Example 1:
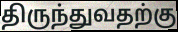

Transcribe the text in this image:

திருந்துவதற்கு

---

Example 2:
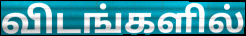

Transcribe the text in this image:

விடங்களில்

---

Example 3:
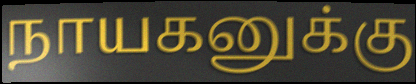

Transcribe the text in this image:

நாயகனுக்கு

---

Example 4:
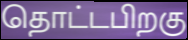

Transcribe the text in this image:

தொட்டபிறகு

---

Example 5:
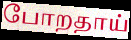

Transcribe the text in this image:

போறதாய்